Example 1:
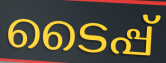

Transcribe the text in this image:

ടൈപ്പ്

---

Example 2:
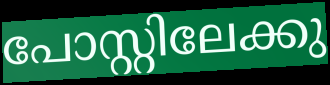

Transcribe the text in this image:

പോസ്റ്റിലേക്കു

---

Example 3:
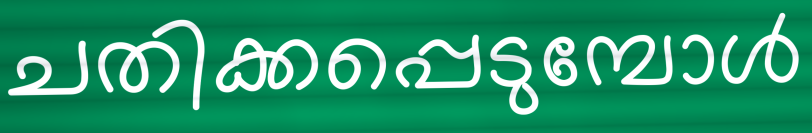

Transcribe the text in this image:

ചതിക്കപ്പെടുമ്പോൾ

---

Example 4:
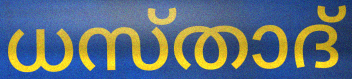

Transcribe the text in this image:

ധസ്താദ്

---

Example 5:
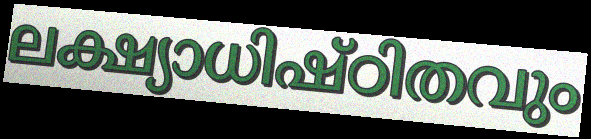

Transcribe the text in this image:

ലക്ഷ്യാധിഷ്ഠിതവും